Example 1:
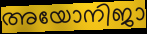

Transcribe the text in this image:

അയോനിജാ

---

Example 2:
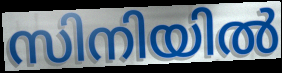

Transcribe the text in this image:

സിനിയിൽ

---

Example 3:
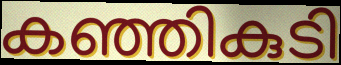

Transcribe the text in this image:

കഞ്ഞികുടി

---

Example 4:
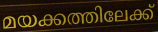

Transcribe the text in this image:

മയക്കത്തിലേക്ക്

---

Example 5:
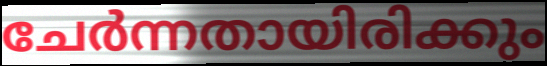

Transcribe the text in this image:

ചേർന്നതായിരിക്കും